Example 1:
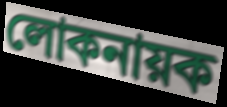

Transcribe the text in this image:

লোকনায়ক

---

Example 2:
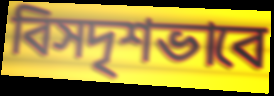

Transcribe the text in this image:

বিসদৃশভাবে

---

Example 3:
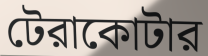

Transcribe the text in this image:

টেরাকোটার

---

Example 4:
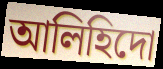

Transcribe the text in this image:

আলিহিদো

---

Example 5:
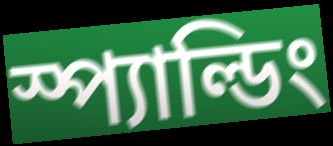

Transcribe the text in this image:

স্প্যাল্ডিং